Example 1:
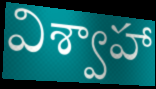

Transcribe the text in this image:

విశ్వాహా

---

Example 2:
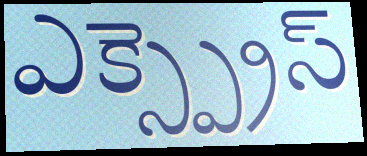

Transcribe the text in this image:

ఎక్స్ప్రెస్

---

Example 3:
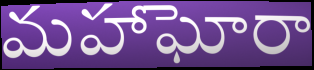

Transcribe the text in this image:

మహాఘోరా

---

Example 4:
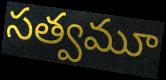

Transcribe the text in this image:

సత్వమూ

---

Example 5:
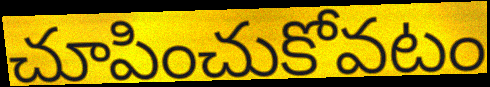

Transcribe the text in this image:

చూపించుకోవటం